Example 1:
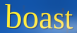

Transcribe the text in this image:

boast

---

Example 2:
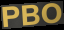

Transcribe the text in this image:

PBO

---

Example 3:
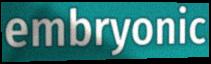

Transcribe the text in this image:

embryonic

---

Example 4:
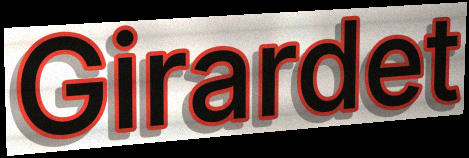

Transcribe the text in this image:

Girardet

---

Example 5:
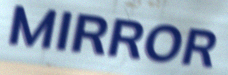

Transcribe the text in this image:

MIRROR